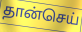
தான்செய்